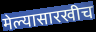
मेल्यासारखीच